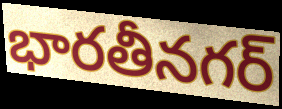
భారతీనగర్